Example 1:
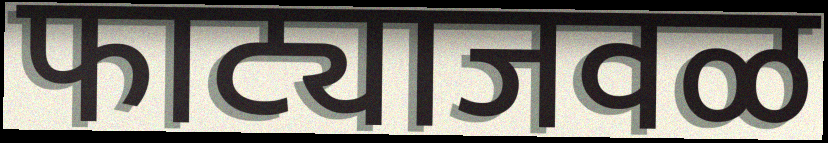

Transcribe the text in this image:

फाट्याजवळ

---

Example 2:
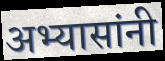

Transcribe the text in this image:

अभ्यासांनी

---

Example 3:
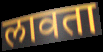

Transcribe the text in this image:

लावता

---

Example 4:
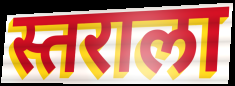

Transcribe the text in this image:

स्तराला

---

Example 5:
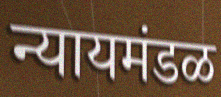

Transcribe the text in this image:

न्यायमंडळ